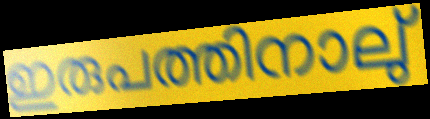
ഇരുപത്തിനാലു്